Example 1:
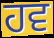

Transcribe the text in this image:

ਹਵ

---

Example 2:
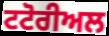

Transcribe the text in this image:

ਟਟੋਰੀਅਲ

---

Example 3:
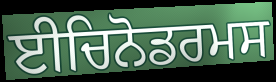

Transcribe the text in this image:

ਈਚਿਨੋਡਰਮਸ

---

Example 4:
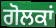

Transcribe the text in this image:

ਗੋਲਕਾਂ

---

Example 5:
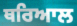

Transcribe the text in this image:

ਥਰਿਆਲ